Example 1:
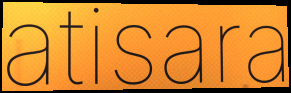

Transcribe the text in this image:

atisara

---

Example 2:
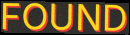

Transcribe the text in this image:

FOUND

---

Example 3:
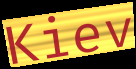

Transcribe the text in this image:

Kiev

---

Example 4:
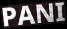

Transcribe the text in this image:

PANI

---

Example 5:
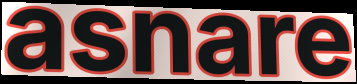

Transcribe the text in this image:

asnare